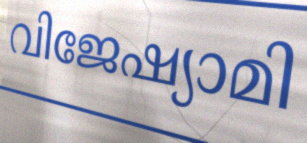
വിജേഷ്യാമി